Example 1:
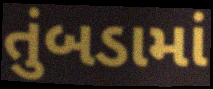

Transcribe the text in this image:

તુંબડામાં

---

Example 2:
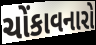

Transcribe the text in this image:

ચોંકાવનારો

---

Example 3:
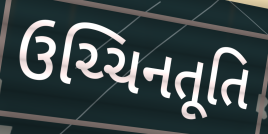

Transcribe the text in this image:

ઉચ્ચિનતૂતિ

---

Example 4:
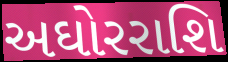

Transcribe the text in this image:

અઘોરરાશિ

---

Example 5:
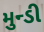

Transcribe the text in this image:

મુન્ડી